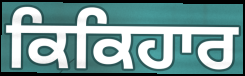
ਕਿਕਿਹਾਰ